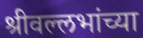
श्रीवल्लभांच्या